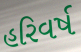
હરિવર્ષ